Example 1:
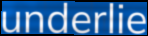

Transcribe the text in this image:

underlie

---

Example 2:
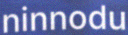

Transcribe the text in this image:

ninnodu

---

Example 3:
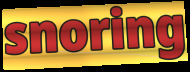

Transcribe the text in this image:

snoring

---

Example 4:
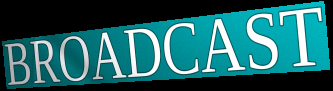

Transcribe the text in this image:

BROADCAST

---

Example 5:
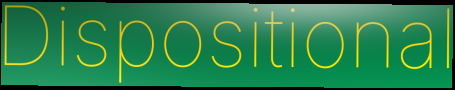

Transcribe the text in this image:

Dispositional